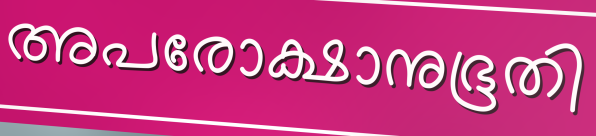
അപരോക്ഷാനുഭൂതി